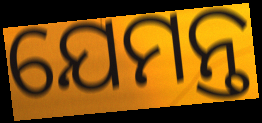
ଯେମନ୍ତ